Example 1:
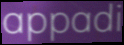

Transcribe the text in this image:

appadi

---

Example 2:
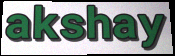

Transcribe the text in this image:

akshay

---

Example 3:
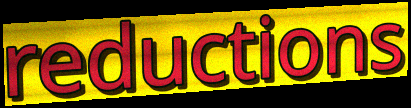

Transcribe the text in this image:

reductions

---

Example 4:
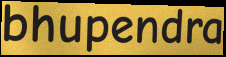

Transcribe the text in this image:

bhupendra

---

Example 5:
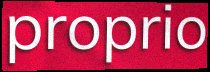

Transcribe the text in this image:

proprio